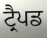
ਟ੍ਰੈਪਡ